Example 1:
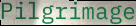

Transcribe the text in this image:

Pilgrimage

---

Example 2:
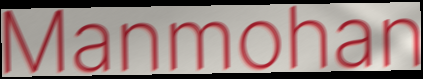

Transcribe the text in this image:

Manmohan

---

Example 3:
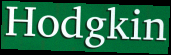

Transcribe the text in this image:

Hodgkin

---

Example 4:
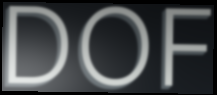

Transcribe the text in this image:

DOF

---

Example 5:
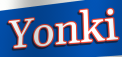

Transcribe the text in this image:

Yonki